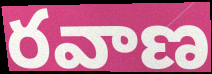
రవాణ